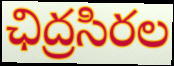
ఛిద్రసిరల